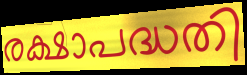
രക്ഷാപദ്ധതി